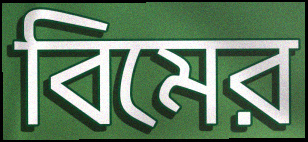
বিমের